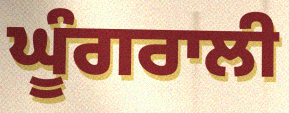
ਘੂੰਗਰਾਲੀ